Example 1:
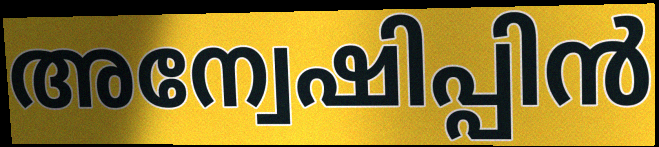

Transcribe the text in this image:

അന്വേഷിപ്പിൻ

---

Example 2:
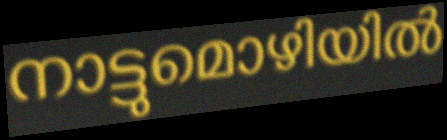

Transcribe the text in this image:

നാട്ടുമൊഴിയിൽ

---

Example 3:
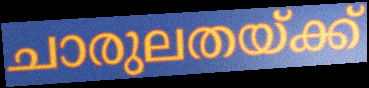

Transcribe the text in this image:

ചാരുലതയ്ക്ക്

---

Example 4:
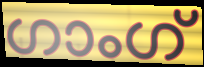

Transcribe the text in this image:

ഗാംഗ്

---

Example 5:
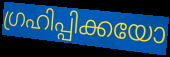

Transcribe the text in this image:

ഗ്രഹിപ്പിക്കയോ